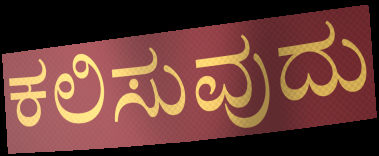
ಕಲಿಸುವುದು